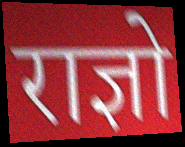
राज्ञो